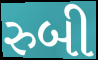
રુબી